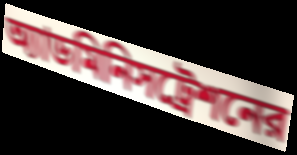
অ্যাডমিনিসট্রেশনের